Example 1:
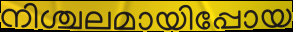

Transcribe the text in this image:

നിശ്ചലമായിപ്പോയ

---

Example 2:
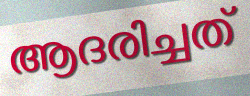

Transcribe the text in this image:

ആദരിച്ചത്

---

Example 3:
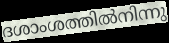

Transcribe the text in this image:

ദശാംശത്തിൽനിന്നു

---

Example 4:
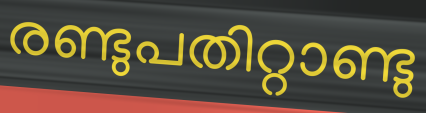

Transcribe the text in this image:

രണ്ടുപതിറ്റാണ്ടു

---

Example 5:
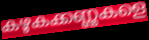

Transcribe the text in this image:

കഴുകക്കണ്ണുകളെ